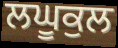
ਲਘੂਕੁਲ